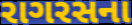
રાગરસના